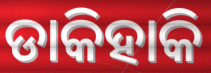
ଡାକିହାକି